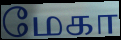
மேகா